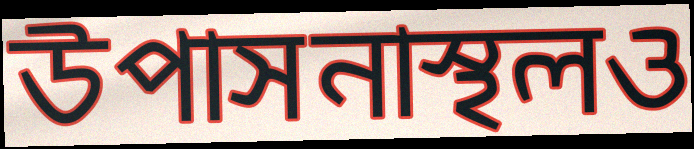
উপাসনাস্থলও